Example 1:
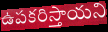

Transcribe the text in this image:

ఉపకరిస్తాయని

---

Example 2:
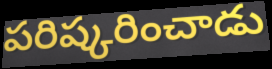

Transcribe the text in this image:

పరిష్కరించాడు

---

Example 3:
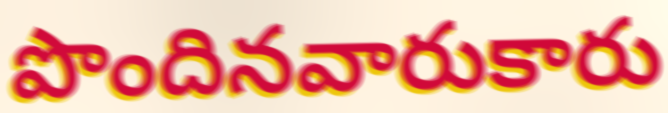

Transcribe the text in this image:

పొందినవారుకారు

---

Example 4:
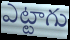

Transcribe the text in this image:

ఎట్టాగు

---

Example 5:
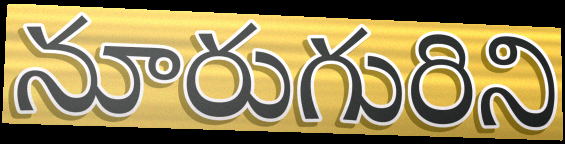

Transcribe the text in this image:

నూరుగురిని